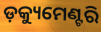
ଡ଼କ୍ୟୁମେଣ୍ଟରି